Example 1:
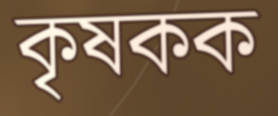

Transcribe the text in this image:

কৃষকক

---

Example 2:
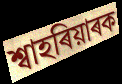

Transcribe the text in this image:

শ্বাহৰিয়াৰক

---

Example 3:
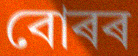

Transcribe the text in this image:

বোৰৰ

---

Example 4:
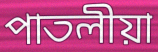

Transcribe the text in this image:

পাতলীয়া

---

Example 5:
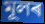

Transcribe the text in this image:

মূলৰ